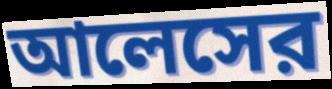
আলেসের